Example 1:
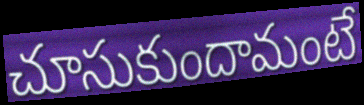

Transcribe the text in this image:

చూసుకుందామంటే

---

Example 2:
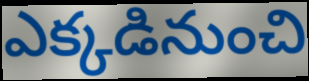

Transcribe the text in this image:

ఎక్కడినుంచి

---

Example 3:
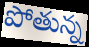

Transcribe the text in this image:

పోతున్న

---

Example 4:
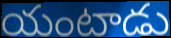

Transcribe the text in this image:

యంటాడు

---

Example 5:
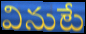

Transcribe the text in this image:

వినుటే